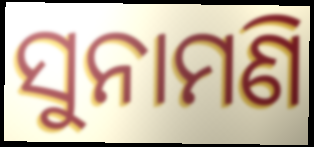
ସୁନାମଣି